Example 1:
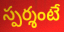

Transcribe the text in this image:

స్పర్శంటే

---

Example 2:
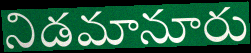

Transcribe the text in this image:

నిడమానూరు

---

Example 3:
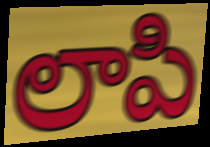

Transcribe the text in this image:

లాపి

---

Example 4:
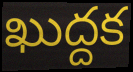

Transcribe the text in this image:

ఖుద్దక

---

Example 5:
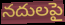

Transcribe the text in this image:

నదులపై